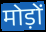
मोड़ों